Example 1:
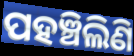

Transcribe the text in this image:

ପହଞ୍ଚିଲିଣି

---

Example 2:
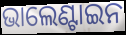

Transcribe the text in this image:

ଭାଲେଣ୍ଟାଇନ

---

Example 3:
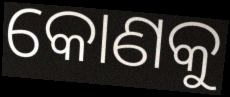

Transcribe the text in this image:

କୋଣକୁ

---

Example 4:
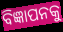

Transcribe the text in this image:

ବିଜ୍ଞାପନକୁ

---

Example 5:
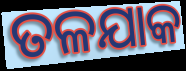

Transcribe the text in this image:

ତଳଯାକ